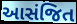
આસંજિત